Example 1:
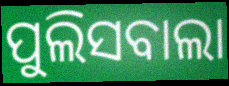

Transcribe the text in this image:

ପୁଲିସବାଲା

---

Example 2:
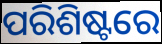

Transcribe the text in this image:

ପରିଶିଷ୍ଟରେ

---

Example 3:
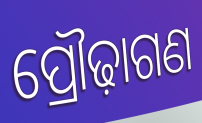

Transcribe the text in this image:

ପ୍ରୌଢ଼ାଗଣ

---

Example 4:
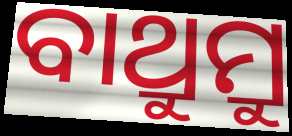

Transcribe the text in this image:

ବାଥ୍ରୁମ୍ରୁ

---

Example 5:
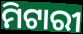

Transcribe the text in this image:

ମିଟାରୀ